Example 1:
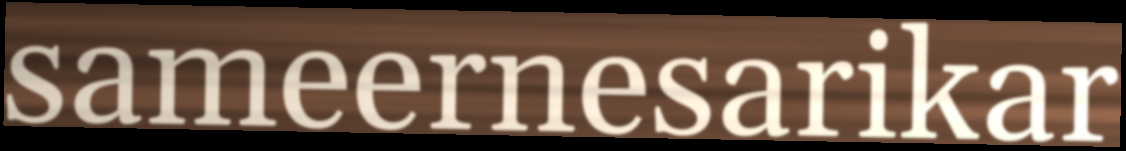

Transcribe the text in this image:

sameernesarikar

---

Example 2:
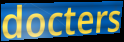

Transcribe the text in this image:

docters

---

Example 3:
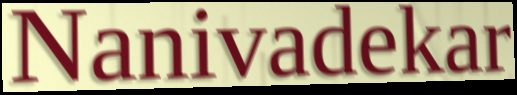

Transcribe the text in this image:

Nanivadekar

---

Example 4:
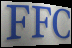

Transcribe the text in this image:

FFC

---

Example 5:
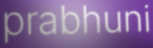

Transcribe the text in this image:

prabhuni